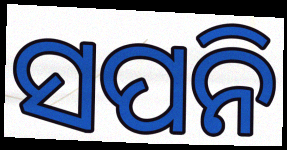
ସପନି